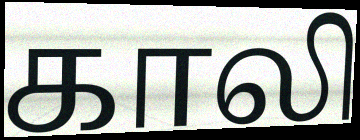
காலி